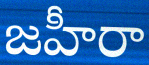
జహీరా